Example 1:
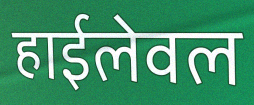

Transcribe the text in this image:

हाईलेवल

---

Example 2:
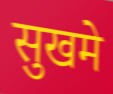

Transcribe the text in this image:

सुखमे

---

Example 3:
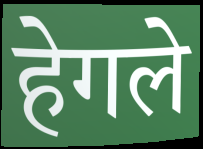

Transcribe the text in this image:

हेगले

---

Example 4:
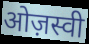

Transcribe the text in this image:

ओज़स्वी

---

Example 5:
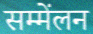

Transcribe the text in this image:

सम्मेंलन